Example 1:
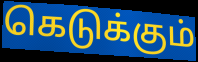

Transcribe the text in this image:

கெடுக்கும்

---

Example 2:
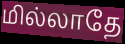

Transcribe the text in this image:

மில்லாதே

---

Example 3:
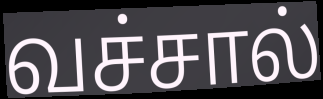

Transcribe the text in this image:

வச்சால்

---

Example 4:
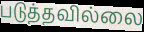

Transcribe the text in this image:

படுத்தவில்லை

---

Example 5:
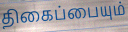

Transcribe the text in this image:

திகைப்பையும்